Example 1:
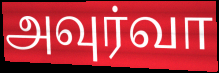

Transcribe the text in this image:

அவுர்வா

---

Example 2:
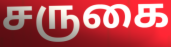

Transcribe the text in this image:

சருகை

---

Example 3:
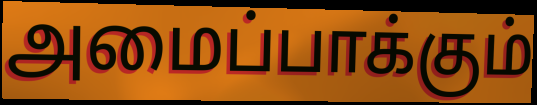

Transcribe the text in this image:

அமைப்பாக்கும்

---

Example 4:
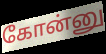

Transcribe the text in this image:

கோன்னு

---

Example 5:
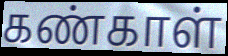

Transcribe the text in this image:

கண்காள்